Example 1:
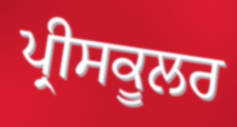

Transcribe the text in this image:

ਪ੍ਰੀਸਕੂਲਰ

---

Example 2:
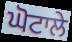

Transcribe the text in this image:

ਘੋਟਾਲੇ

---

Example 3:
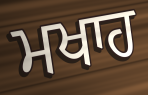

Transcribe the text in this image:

ਮਖਾਹ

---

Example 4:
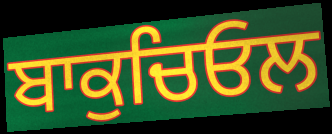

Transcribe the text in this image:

ਬਾਕੁਚਿਓਲ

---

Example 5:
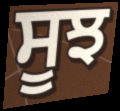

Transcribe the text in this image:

ਸੂਝ